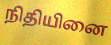
நிதியினை